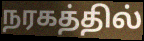
நரகத்தில்